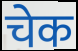
चेक